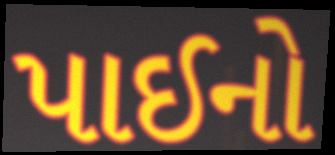
પાઈનો